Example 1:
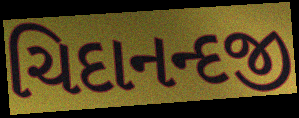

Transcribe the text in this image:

ચિદાનન્દજી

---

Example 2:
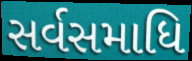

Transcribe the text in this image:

સર્વસમાધિ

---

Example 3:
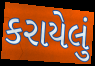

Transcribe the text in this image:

કરાયેલું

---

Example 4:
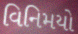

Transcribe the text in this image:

વિનિમયો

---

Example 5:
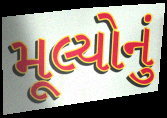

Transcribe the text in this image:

મૂલ્યોનું